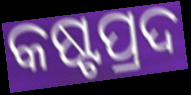
କଷ୍ଟପ୍ରଦ